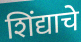
शिंद्याचे